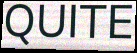
QUITE